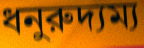
ধনুরুদ্যম্য